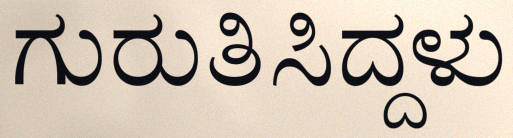
ಗುರುತಿಸಿದ್ದಳು